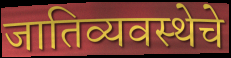
जातिव्यवस्थेचे